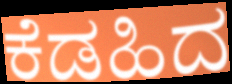
ಕೆಡಹಿದ